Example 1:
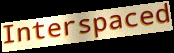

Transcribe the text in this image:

Interspaced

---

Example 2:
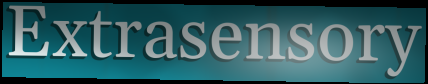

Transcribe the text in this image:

Extrasensory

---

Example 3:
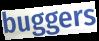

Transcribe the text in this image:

buggers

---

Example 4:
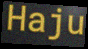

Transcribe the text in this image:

Haju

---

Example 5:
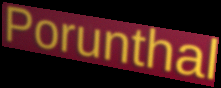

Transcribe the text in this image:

Porunthal